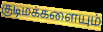
குடிமக்களையும்